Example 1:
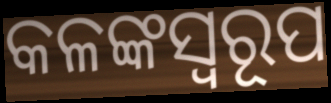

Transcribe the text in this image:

କଳଙ୍କସ୍ୱରୂପ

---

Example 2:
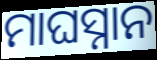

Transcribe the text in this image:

ମାଘସ୍ନାନ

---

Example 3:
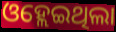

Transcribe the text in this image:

ଓହ୍ଲେଇଥିଲା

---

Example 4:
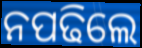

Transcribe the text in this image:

ନପଢିଲେ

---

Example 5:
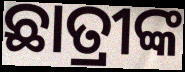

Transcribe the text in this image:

ଛାତ୍ରୀଙ୍କ